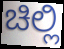
ಚಿಲ್ಲಿ